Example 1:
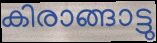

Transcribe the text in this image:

കിരാങ്ങാട്ടു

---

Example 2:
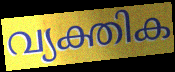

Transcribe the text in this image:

വ്യക്തിക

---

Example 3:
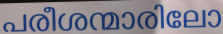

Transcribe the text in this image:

പരീശന്മാരിലോ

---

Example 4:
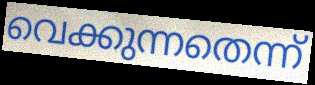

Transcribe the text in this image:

വെക്കുന്നതെന്ന്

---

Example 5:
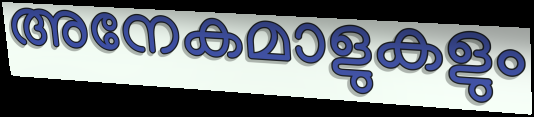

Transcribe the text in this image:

അനേകമാളുകളും